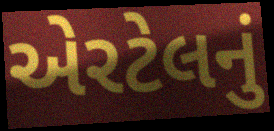
એરટેલનું